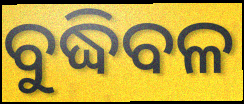
ବୁଦ୍ଧିବଳ